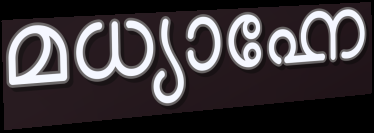
മധ്യാഹ്നേ